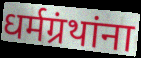
धर्मग्रंथांना